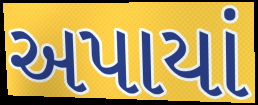
અપાયાં